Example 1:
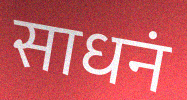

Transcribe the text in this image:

साधनं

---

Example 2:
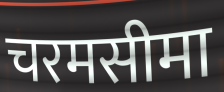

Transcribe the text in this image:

चरमसीमा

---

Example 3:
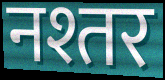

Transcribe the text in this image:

नश्तर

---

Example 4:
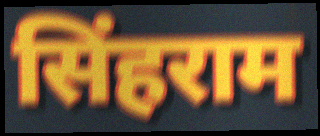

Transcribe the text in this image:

सिंहराम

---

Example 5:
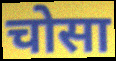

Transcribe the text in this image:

चोसा